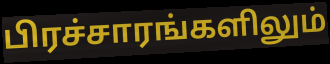
பிரச்சாரங்களிலும்